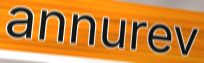
annurev